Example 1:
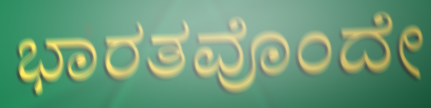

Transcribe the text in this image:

ಭಾರತವೊಂದೇ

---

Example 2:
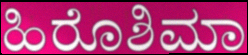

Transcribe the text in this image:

ಹಿರೊಶಿಮಾ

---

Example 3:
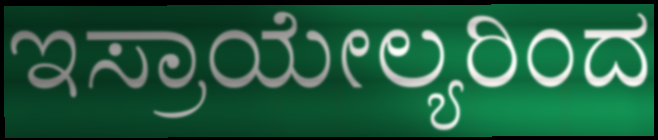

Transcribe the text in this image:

ಇಸ್ರಾಯೇಲ್ಯರಿಂದ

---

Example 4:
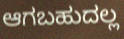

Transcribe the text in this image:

ಆಗಬಹುದಲ್ಲ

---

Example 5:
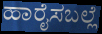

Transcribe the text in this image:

ಹಾರೈಸಬಲ್ಲೆ